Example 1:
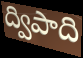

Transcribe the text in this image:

ద్విపాది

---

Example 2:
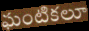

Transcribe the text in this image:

ఘంటికలూ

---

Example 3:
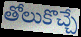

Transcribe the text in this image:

తోలుకొచ్చే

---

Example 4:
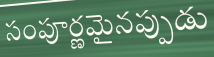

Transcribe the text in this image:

సంపూర్ణమైనప్పుడు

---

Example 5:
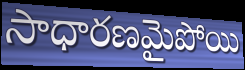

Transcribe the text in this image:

సాధారణమైపోయి